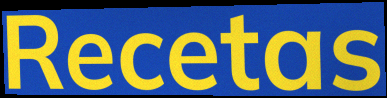
Recetas